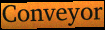
Conveyor